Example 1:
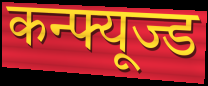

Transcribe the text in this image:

कन्फ्यूज्ड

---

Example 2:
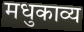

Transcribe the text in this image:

मधुकाव्य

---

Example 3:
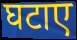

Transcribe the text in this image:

घटाए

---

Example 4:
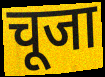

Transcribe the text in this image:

चूजा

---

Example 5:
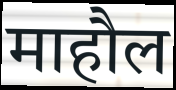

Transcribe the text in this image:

माहौल